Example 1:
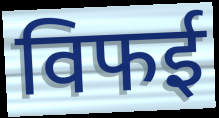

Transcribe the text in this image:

विफई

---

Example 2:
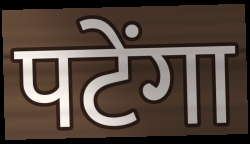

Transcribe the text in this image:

पटेंगा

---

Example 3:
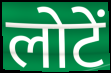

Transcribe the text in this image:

लोटें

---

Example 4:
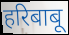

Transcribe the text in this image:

हरिबाबू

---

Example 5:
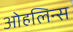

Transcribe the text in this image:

ओहलिन्स